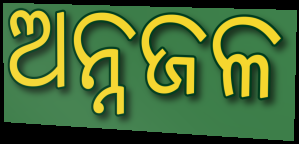
ଅନ୍ନଜଳ